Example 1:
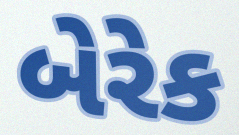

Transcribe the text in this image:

બેરેક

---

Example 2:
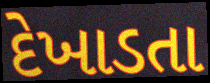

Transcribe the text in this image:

દેખાડતા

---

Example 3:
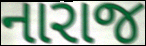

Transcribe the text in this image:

નારાજ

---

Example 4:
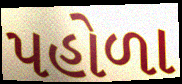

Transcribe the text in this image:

પહોળા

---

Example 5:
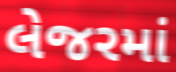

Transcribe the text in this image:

લેજરમાં